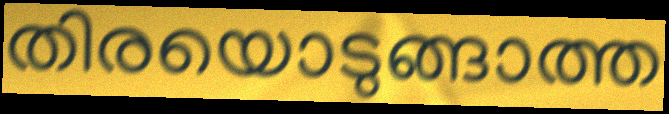
തിരയൊടുങ്ങാത്ത